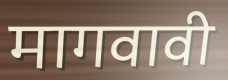
मागवावी